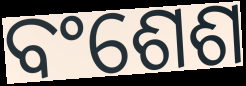
ବଂଶେଶ